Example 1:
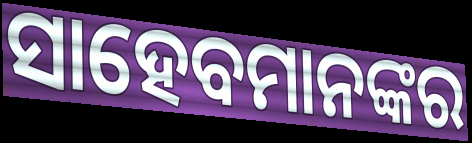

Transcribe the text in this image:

ସାହେବମାନଙ୍କର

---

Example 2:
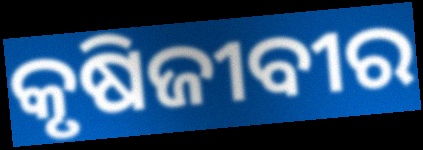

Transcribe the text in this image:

କୃଷିଜୀବୀର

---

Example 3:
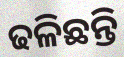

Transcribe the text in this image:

ଢଳିଛନ୍ତି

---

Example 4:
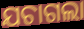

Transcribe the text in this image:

ଯଚାଗଲା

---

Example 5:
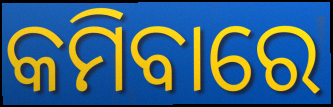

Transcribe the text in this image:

କମିବାରେ